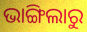
ଭାଙ୍ଗିଲାରୁ